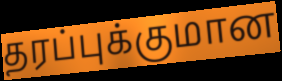
தரப்புக்குமான